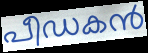
പീഡകൻ